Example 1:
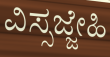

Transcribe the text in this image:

ವಿಸ್ಸಜ್ಜೇಹಿ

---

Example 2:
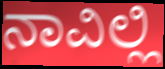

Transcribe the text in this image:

ನಾವಿಲ್ಲಿ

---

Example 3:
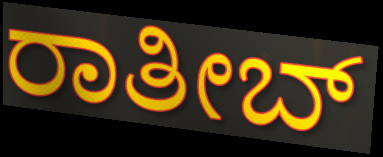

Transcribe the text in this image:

ರಾತೀಬ್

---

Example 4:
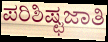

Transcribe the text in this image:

ಪರಿಶಿಷ್ಟಜಾತಿ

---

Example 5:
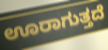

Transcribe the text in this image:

ಊರಾಗುತ್ತದೆ